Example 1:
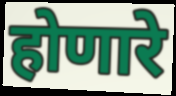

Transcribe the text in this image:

होणारे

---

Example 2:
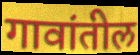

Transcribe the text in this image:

गावांतील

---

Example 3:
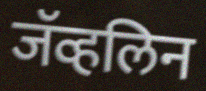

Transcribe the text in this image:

जॅव्हलिन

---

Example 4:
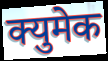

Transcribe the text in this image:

क्युमेक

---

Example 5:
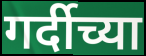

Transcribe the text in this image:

गर्दीच्या